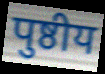
पुष्ठीय